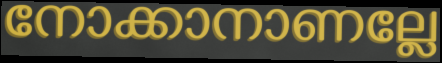
നോക്കാനാണല്ലേ